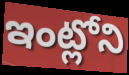
ఇంట్లోని